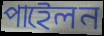
পাইেলন